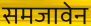
समजावेन